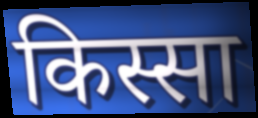
किस्सा